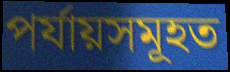
পৰ্যায়সমূহত